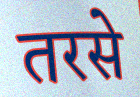
तरसे